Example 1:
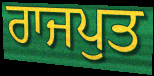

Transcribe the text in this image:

ਰਾਜਪੁਤ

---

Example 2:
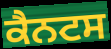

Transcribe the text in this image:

ਕੈਨਟਸ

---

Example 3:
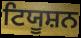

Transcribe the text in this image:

ਟਿਯੂਸ਼ਨ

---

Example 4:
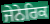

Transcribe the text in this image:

ਜੇਨੇਰਿਕ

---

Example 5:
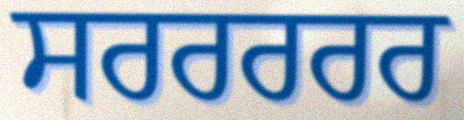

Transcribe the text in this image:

ਸਰਰਰਰਰ